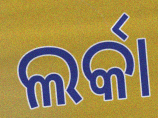
ଲର୍କା